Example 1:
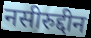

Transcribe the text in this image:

नसीरुद्दीन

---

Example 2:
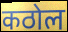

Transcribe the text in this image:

कठोल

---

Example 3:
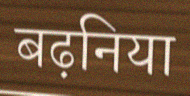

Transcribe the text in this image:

बढ़निया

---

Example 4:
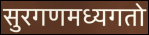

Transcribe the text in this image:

सुरगणमध्यगतो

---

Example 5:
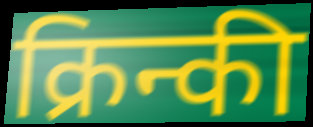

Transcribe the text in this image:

क्रिन्की